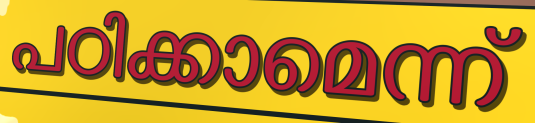
പഠിക്കാമെന്ന്